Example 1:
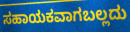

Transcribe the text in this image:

ಸಹಾಯಕವಾಗಬಲ್ಲದು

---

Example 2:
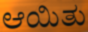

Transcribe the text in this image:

ಆಯಿತು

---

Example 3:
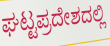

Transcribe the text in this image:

ಘಟ್ಟಪ್ರದೇಶದಲ್ಲಿ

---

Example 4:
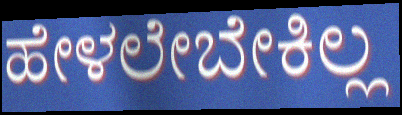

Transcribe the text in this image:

ಹೇಳಲೇಬೇಕಿಲ್ಲ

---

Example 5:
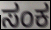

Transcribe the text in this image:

ಸಂಕ